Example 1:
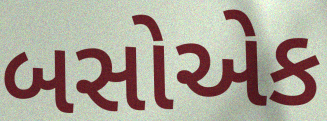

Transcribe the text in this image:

બસોએક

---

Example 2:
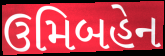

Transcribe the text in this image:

ઉમિબહેન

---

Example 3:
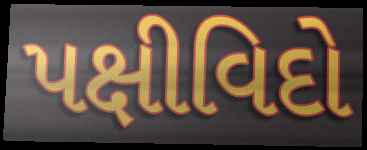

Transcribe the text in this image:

પક્ષીવિદો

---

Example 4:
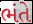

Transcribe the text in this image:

ભંતે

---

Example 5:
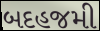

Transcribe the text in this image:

બદહજમી